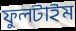
ফুলটাইম